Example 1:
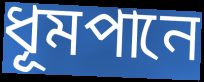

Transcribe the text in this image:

ধূমপানে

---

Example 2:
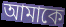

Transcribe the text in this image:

আমাকে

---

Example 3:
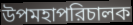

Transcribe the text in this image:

উপমহাপরিচালক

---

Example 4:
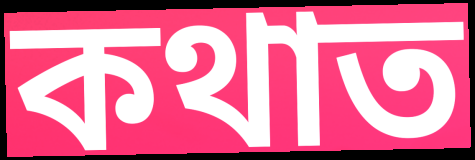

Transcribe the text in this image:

কথাত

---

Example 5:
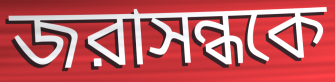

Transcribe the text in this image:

জরাসন্ধকে